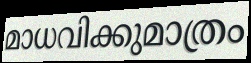
മാധവിക്കുമാത്രം